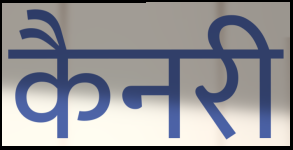
कैनरी